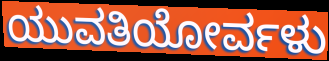
ಯುವತಿಯೋರ್ವಳು